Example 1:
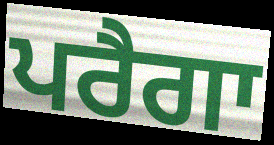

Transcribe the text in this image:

ਪਰੈਗਾ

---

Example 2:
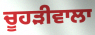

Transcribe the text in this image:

ਚੂਹੜੀਵਾਲਾ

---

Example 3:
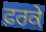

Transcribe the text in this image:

ਫ਼ਰਕੇ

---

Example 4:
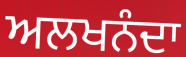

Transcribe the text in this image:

ਅਲਖਨੰਦਾ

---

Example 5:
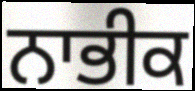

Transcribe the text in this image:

ਨਾਭੀਕ